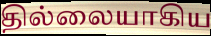
தில்லையாகிய